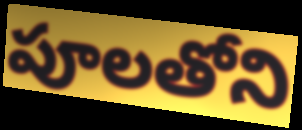
పూలతోని